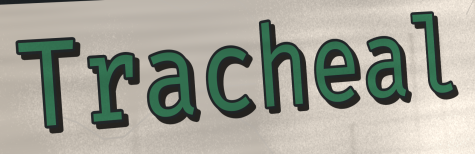
Tracheal